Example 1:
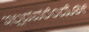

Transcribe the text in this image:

ಇಲ್ಲದವರೆಂದೋ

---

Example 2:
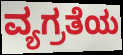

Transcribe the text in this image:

ವ್ಯಗ್ರತೆಯ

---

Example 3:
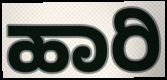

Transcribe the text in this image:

ಹಾರಿ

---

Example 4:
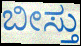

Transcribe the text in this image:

ಬೀಸ್ತು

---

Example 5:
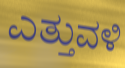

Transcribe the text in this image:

ಎತ್ತುವಳಿ